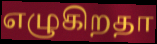
எழுகிறதா